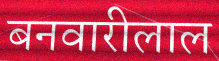
बनवारीलाल